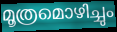
മൂത്രമൊഴിച്ചും